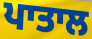
ਪਾਤਾਲ